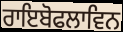
ਰਾਇਬੋਫਲਾਵਿਨ